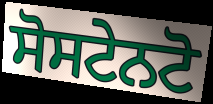
ਸੋਸਟੇਨਟੋ